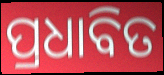
ପ୍ରଧାବିତ